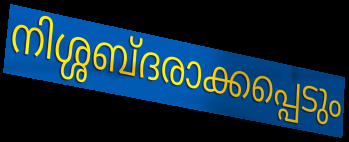
നിശ്ശബ്ദരാക്കപ്പെടും